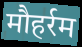
मौहर्रम